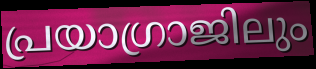
പ്രയാഗ്രാജിലും